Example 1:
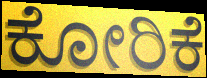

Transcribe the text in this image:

ಕೋರಿಕೆ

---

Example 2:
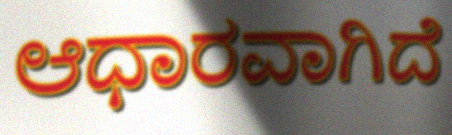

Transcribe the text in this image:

ಆಧಾರವಾಗಿದೆ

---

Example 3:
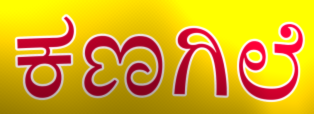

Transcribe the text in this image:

ಕಣಗಿಲೆ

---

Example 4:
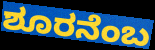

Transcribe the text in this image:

ಶೂರನೆಂಬ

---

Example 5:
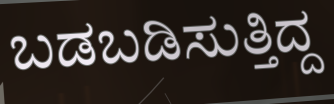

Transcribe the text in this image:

ಬಡಬಡಿಸುತ್ತಿದ್ದ